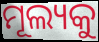
ମୂଲ୍ୟକୁ